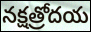
నక్షత్రోదయ